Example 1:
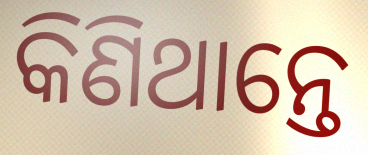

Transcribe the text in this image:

କିଣିଥାନ୍ତେ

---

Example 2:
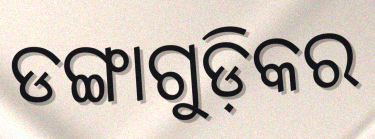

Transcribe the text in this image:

ଡଙ୍ଗାଗୁଡ଼ିକର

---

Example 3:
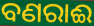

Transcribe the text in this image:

ବଣରାଈ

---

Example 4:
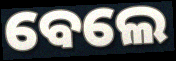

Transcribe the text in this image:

ବେଲେ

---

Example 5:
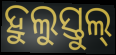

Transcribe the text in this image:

ହୁଲୁସ୍ତୁଲ୍